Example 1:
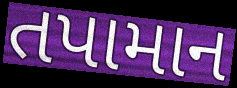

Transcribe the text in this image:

તપામાન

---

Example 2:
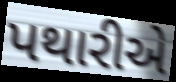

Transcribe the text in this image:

પથારીએ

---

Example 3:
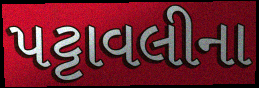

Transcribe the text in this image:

પટ્ટાવલીના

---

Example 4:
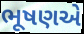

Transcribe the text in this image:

ભૂષણએ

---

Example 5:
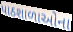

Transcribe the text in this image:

પાઠશાળાઓના